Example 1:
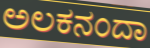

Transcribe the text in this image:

ಅಲಕನಂದಾ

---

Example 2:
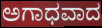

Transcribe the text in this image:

ಅಗಾಧವಾದ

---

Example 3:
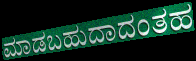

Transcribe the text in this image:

ಮಾಡಬಹುದಾದಂತಹ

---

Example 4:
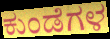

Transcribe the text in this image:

ಕುಂಡೆಗಳ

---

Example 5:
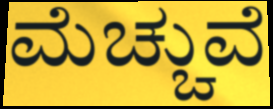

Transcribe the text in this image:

ಮೆಚ್ಚುವೆ